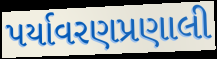
પર્યાવરણપ્રણાલી